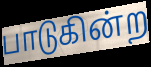
பாடுகின்ற